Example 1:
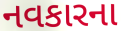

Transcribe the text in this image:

નવકારના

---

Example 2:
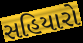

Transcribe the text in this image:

સહિયારો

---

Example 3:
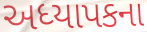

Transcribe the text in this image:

અધ્યાપકના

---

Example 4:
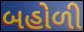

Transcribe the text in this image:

બહોળી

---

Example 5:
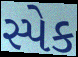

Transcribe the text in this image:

સ્પેક